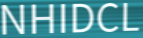
NHIDCL